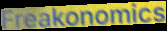
Freakonomics